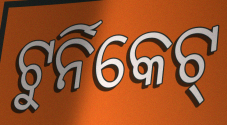
ଟୁର୍ନିକେଟ୍